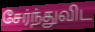
சேர்ந்துவிட